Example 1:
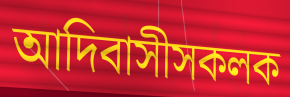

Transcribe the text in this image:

আদিবাসীসকলক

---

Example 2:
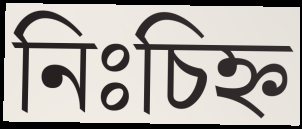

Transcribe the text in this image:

নিঃচিহ্ন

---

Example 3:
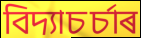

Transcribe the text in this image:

বিদ্যাচৰ্চাৰ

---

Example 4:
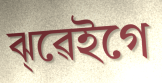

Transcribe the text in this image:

ঝ্ৱেইগে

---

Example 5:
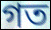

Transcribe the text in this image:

গত